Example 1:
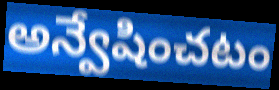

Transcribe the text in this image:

అన్వేషించటం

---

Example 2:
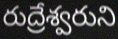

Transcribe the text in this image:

రుద్రేశ్వరుని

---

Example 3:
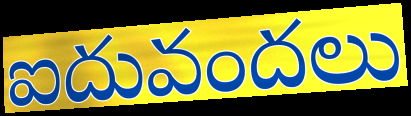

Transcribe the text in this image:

ఐదువందలు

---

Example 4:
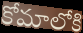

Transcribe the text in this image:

కోమాలోకి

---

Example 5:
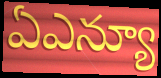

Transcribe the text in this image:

ఏఎన్యూ